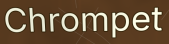
Chrompet